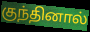
குந்தினால்